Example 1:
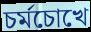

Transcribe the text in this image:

চর্মচোখে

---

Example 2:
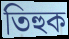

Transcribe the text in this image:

তিহুক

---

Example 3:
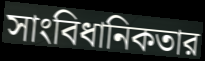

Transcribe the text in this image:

সাংবিধানিকতার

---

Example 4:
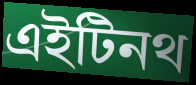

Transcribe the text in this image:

এইটিনথ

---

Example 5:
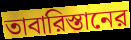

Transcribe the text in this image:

তাবারিস্তানের